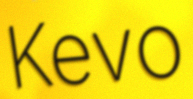
Kevo